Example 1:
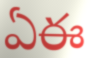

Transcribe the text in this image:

ఏఈ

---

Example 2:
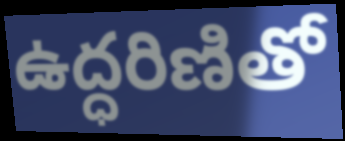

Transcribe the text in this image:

ఉద్ధరిణితో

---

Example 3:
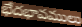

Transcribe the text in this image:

భేదభావములు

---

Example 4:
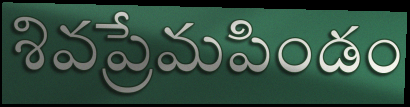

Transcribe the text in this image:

శివప్రేమపిండం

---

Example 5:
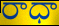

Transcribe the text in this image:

రాధా